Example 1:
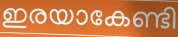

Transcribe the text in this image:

ഇരയാകേണ്ടി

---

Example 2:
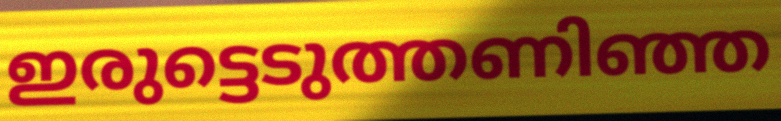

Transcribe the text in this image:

ഇരുട്ടെടുത്തണിഞ്ഞ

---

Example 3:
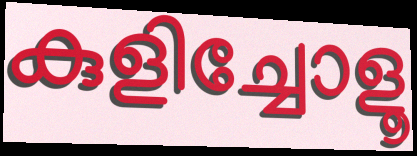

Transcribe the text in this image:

കുളിച്ചോളൂ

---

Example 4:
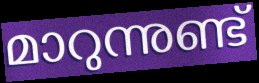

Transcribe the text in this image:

മാറുന്നുണ്ട്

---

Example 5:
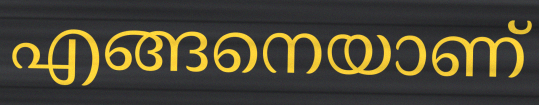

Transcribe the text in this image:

എങ്ങനെയാണ്